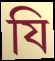
যি